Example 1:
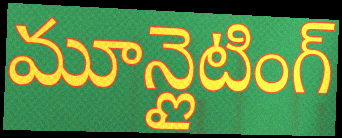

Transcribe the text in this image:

మూన్లైటింగ్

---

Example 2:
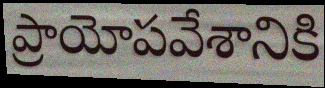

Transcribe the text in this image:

ప్రాయోపవేశానికి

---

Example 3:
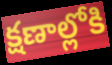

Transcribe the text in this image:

క్షణాల్లోకి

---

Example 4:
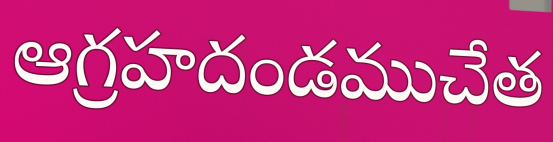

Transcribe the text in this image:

ఆగ్రహదండముచేత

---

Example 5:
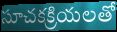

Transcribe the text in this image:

సూచకక్రియలతో